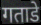
गताडे